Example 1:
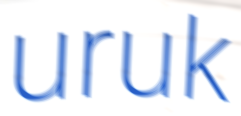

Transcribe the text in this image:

uruk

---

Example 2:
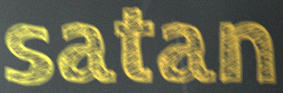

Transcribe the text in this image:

satan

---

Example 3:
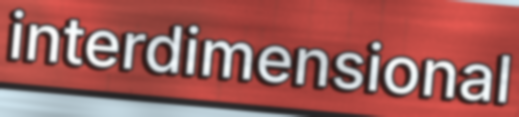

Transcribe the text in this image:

interdimensional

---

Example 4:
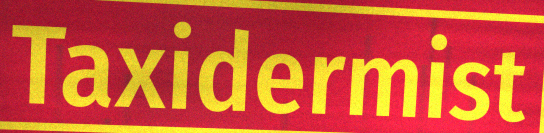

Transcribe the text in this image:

Taxidermist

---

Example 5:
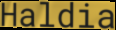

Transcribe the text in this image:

Haldia